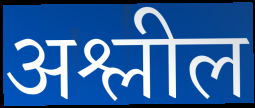
अश्लील